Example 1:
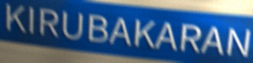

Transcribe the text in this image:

KIRUBAKARAN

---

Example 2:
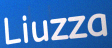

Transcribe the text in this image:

Liuzza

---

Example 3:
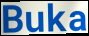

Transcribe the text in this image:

Buka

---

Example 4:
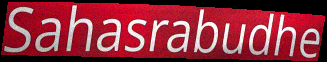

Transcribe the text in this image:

Sahasrabudhe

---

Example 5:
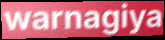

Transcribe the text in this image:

warnagiya